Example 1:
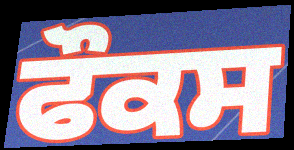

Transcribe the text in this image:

ਫੌਕਸ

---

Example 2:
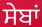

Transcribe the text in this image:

ਸੇਬਾਂ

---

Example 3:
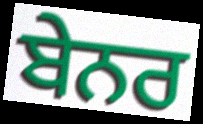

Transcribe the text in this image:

ਬੇਨਰ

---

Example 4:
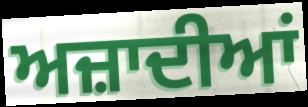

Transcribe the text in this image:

ਅਜ਼ਾਦੀਆਂ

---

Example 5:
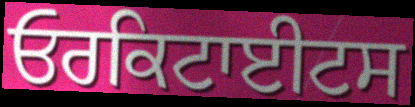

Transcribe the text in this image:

ਓਰਕਿਟਾਈਟਸ